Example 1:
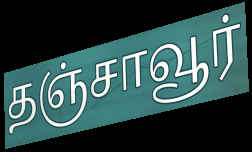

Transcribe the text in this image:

தஞ்சாவூர்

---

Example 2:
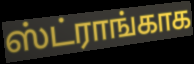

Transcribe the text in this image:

ஸ்ட்ராங்காக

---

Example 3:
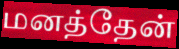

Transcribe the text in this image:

மனத்தேன்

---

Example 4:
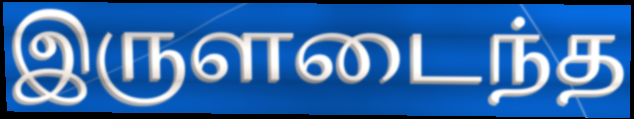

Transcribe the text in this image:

இருளடைந்த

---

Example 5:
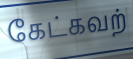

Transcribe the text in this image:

கேட்கவற்